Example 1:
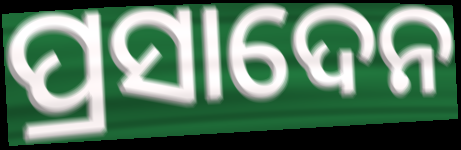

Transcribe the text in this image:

ପ୍ରସାଦେନ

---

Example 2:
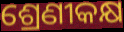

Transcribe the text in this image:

ଶ୍ରେଣୀକକ୍ଷ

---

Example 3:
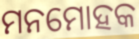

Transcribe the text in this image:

ମନମୋହକ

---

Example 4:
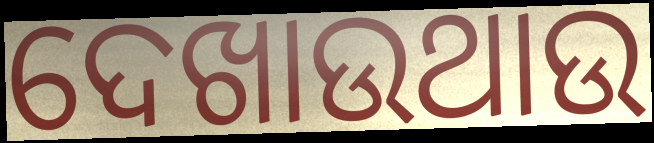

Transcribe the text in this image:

ଦେଖାଉଥାଉ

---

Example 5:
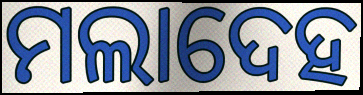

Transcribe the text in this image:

ମଲାଦେହ